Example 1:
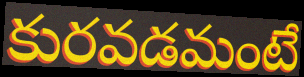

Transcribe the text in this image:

కురవడమంటే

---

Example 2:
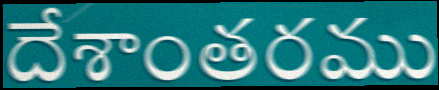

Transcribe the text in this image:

దేశాంతరము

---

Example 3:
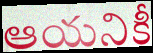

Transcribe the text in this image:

ఆయనికీ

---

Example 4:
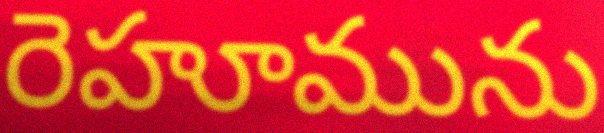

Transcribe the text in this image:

రెహూమును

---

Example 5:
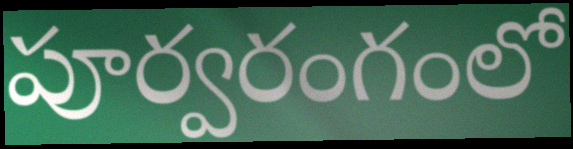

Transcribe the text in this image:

పూర్వరంగంలో